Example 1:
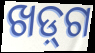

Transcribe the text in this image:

ଖଡ଼୍‌ଗ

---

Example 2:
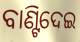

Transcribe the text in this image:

ବାଣ୍ଟିଦେଇ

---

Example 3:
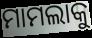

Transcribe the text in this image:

ମାମଲାକୁ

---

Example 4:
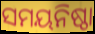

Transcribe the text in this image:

ସମୟନିଷ୍ଠା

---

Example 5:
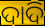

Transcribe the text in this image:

ଦାଦି